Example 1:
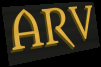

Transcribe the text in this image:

ARV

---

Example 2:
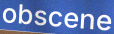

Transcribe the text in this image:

obscene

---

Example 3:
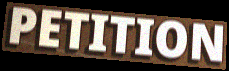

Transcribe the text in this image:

PETITION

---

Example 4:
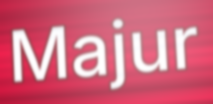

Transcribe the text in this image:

Majur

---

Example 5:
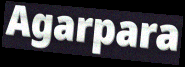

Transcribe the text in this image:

Agarpara